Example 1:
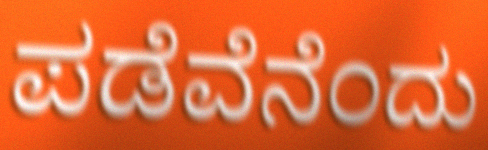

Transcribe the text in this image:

ಪಡೆವೆನೆಂದು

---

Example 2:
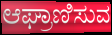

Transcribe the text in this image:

ಆಘ್ರಾಣಿಸುವ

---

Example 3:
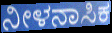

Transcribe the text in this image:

ನೀಳನಾಸಿಕ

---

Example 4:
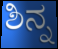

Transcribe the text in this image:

ಶಿನ್ನ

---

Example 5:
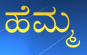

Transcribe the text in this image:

ಹೆಮ್ಮ